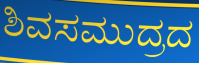
ಶಿವಸಮುದ್ರದ